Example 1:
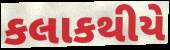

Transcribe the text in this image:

કલાકથીયે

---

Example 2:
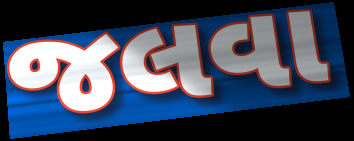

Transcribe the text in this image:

જલવા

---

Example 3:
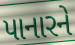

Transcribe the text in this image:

પાનારને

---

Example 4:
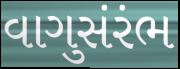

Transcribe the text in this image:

વાગુસંરંભ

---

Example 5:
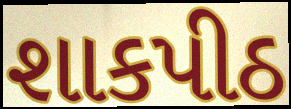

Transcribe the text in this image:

શાકપીઠ